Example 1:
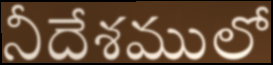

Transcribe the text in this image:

నీదేశములో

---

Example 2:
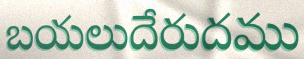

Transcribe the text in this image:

బయలుదేరుదము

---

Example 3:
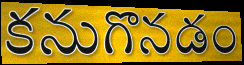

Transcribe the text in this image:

కనుగొనడం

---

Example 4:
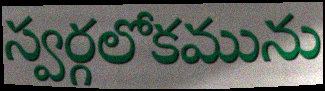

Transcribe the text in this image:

స్వర్గలోకమును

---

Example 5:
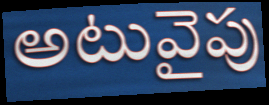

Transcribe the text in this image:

అటువైపు